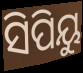
ସିପିୟୁ